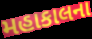
મહાકાલના